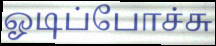
ஓடிப்போச்சு